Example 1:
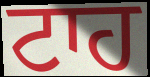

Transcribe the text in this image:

ਟਾਹ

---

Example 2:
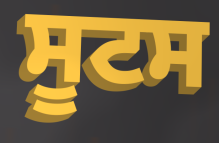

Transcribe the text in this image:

ਸੂਟਸ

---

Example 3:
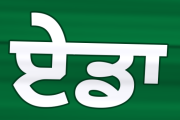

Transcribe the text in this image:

ਏਡਾ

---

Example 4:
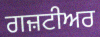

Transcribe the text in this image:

ਗਜ਼ਟੀਅਰ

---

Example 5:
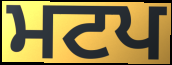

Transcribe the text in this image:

ਮਟਪ